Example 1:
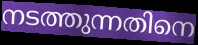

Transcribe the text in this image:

നടത്തുന്നതിനെ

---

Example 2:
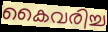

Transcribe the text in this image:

കൈവരിച്ച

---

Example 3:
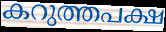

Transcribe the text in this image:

കറുത്തപക്ഷ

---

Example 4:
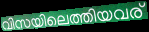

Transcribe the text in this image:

വിസയിലെത്തിയവര്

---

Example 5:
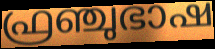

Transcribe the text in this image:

ഫ്രഞ്ചുഭാഷ